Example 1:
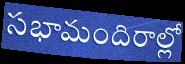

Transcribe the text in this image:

సభామందిరాల్లో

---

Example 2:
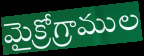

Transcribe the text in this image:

మైక్రోగ్రాముల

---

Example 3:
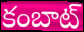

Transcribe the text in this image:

కంబాట్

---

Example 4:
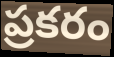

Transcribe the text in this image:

ప్రకరం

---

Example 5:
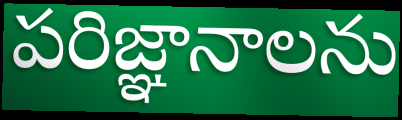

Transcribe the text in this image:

పరిజ్ఞానాలను